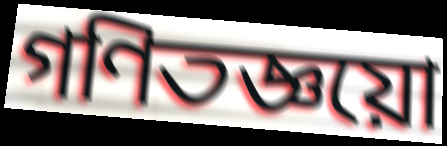
গণিতজ্ঞয়ো